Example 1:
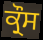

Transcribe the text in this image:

ਕ੍ਰੌਸ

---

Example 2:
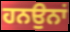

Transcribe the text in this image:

ਹਨਉਨਾਂ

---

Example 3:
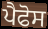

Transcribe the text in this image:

ਪੈਫੋਸ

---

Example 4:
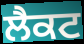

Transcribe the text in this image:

ਲੈਕਟ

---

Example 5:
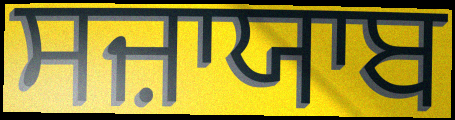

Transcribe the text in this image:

ਸਜ਼ਾਯਾਬ